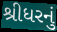
શ્રીધરનું